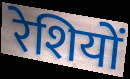
रेशियों